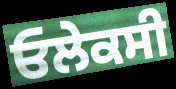
ਓਲੇਕਸੀ